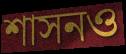
শাসনও